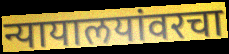
न्यायालयांवरचा